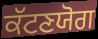
ਕੱਟਣਯੋਗ